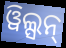
ୱିଲ୍ସନ୍